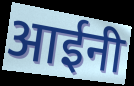
आईनी